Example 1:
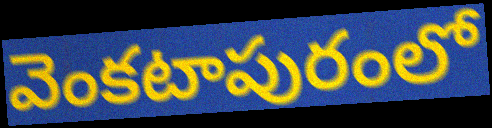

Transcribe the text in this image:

వెంకటాపురంలో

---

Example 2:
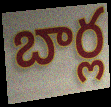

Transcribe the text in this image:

బార్ల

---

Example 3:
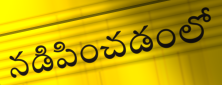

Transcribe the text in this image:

నడిపించడంలో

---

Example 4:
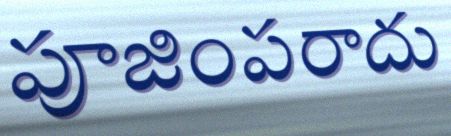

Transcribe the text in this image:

పూజింపరాదు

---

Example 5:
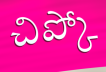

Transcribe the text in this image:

చిప్కో